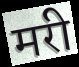
मरी